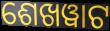
ଶେଖୱାଟ